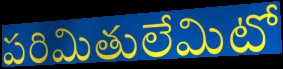
పరిమితులేమిటో